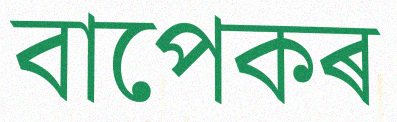
বাপেকৰ